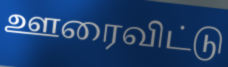
ஊரைவிட்டு